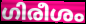
ഗിരീശം